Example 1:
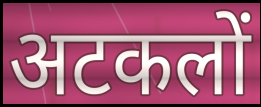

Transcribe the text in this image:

अटकलों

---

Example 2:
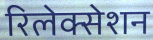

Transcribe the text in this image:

रिलेक्सेशन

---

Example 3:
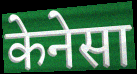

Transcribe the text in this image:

केनेसा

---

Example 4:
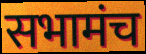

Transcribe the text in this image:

सभामंच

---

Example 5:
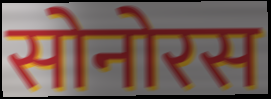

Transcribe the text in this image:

सोनोरस